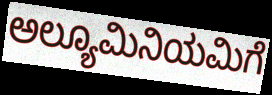
ಅಲ್ಯೂಮಿನಿಯಮಿಗೆ